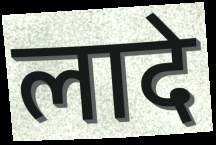
लादे